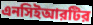
এনসিইআরটির